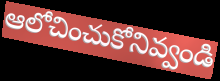
ఆలోచించుకోనివ్వండి